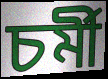
চর্মী